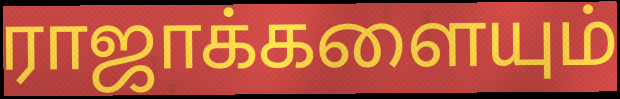
ராஜாக்களையும்